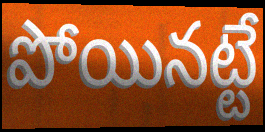
పోయినట్టే